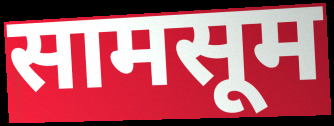
सामसूम